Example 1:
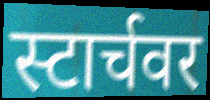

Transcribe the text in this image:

स्टार्चवर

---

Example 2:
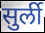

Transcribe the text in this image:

सुर्ली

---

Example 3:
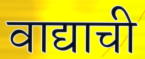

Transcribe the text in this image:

वाद्याची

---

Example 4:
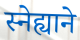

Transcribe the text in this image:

स्नेह्याने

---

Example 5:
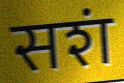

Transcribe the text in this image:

सशं